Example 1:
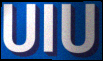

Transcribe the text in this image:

UIU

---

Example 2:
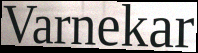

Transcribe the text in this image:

Varnekar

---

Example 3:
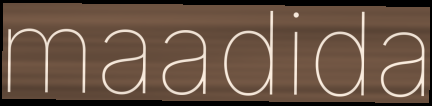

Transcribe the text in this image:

maadida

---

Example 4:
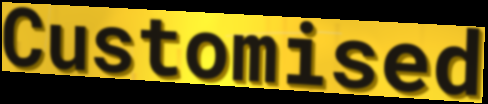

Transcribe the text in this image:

Customised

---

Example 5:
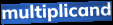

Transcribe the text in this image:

multiplicand